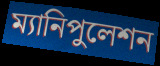
ম্যানিপুলেশন